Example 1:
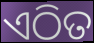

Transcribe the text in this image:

ଏଠିତ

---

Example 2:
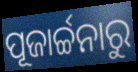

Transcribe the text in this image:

ପୂଜାର୍ଚ୍ଚନାରୁ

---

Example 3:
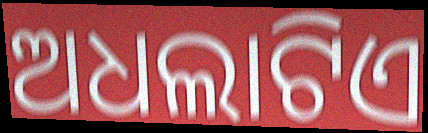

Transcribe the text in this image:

ଅଧଲାଟିଏ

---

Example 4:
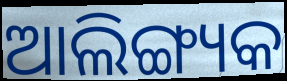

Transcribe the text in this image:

ଆଲିଙ୍ଗ୍ୟକ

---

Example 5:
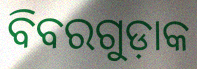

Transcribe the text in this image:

ବିବରଗୁଡ଼ାକ